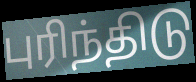
புரிந்திடு